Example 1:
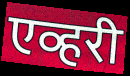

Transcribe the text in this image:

एव्हरी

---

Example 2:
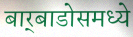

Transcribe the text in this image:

बार्बाडोसमध्ये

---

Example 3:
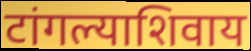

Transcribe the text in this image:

टांगल्याशिवाय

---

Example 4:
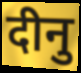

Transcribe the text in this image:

दीनु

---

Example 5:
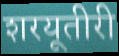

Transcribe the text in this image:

शरयूतीरी